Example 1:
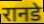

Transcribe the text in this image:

रानडे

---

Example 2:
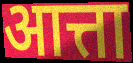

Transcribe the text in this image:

आत्ता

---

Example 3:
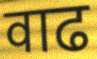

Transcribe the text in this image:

वाढ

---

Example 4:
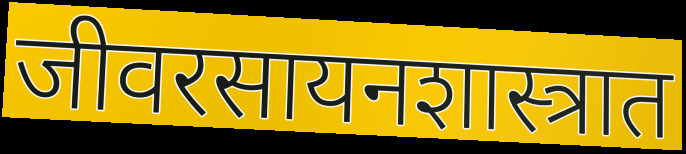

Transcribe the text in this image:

जीवरसायनशास्त्रात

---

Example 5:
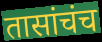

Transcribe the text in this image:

तासांचंच